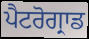
ਪੈਟਰੋਗ੍ਰਾਡ